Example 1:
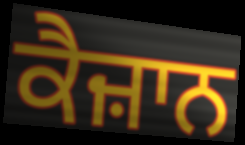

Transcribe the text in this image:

ਕੈਜ਼ਾਨ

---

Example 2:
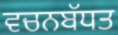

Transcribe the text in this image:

ਵਚਨਬੱਧਤ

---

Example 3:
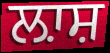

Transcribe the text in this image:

ਲ਼ਾਸ਼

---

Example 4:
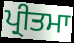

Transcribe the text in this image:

ਪ੍ਰੀਤਮਾ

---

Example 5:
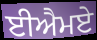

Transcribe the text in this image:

ਈਐਮਏ